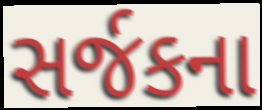
સર્જકના